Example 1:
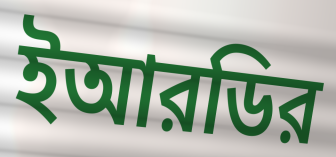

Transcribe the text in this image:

ইআরডির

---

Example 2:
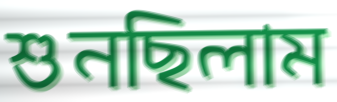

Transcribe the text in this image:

শুনছিলাম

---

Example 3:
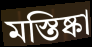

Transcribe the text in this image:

মস্তিষ্কা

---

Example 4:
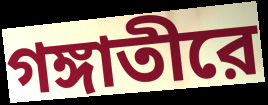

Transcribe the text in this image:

গঙ্গাতীরে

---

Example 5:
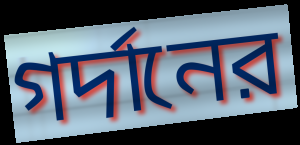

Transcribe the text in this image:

গর্দানের